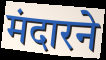
मंदारने